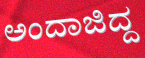
ಅಂದಾಜಿದ್ದ